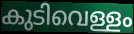
കുടിവെള്ളം